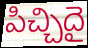
పిచ్చిదై